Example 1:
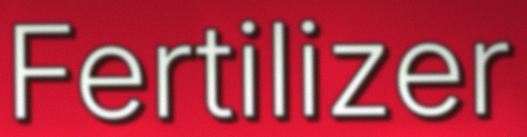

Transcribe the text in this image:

Fertilizer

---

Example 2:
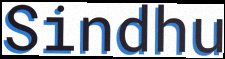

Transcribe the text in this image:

Sindhu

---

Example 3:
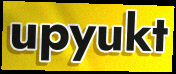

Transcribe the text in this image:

upyukt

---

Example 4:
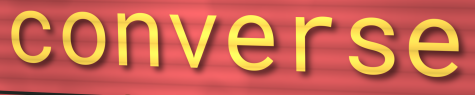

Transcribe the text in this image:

converse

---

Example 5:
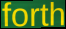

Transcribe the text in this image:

forth